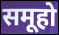
समूहो